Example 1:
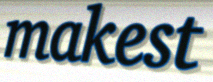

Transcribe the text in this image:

makest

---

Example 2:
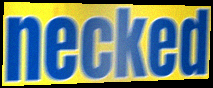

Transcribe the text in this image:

necked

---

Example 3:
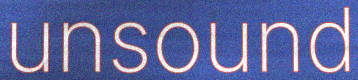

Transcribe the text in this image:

unsound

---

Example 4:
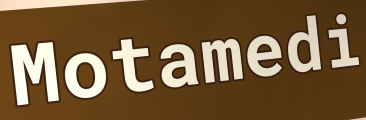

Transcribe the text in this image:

Motamedi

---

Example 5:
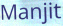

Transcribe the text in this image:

Manjit